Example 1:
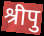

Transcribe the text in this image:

श्रीपु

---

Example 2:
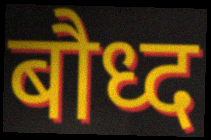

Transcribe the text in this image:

बौध्द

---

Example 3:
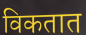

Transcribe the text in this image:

विकतात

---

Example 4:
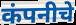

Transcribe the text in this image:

कंपनीचे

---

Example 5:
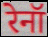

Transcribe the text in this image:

रेनॉ